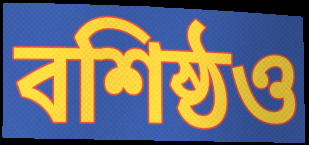
বশিষ্ঠও